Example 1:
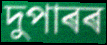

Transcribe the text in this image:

দুপাৰৰ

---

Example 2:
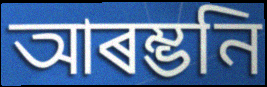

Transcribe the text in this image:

আৰম্ভনি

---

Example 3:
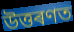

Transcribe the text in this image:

উত্তৰণত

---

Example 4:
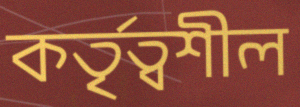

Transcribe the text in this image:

কৰ্তৃত্বশীল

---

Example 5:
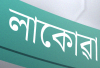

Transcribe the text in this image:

লাকোৱা